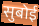
सुबोई